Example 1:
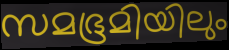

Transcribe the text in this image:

സമഭൂമിയിലും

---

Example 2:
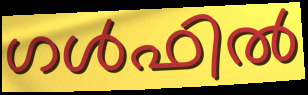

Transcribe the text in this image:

ഗൾഫിൽ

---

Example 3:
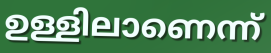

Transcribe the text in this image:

ഉള്ളിലാണെന്ന്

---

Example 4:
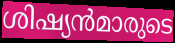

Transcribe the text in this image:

ശിഷ്യൻമാരുടെ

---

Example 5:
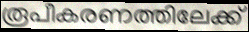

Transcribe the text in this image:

രൂപീകരണത്തിലേക്ക്